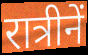
रात्रीनें